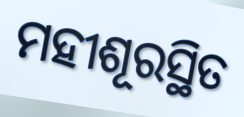
ମହୀଶୂରସ୍ଥିତ